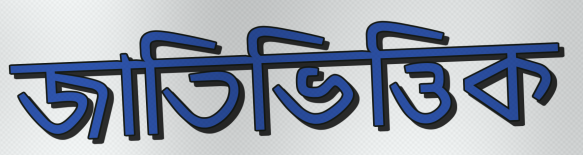
জাতিভিত্তিক